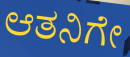
ಆತನಿಗೇ